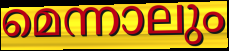
മെന്നാലും